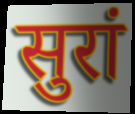
सुरां